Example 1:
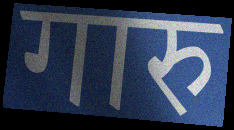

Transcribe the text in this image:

गारु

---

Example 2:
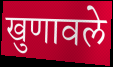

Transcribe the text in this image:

खुणावले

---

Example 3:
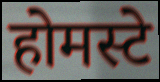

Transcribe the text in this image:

होमस्टे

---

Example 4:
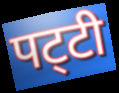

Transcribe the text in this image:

पट्‌टी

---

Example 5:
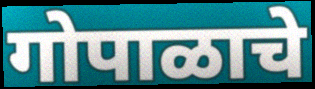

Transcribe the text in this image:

गोपाळाचे